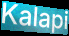
Kalapi